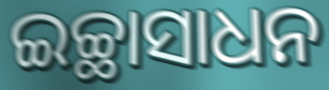
ଇଚ୍ଛାସାଧନ